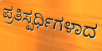
ಪ್ರತಿಸ್ಪರ್ಧಿಗಳಾದ